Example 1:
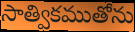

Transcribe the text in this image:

సాత్వికముతోను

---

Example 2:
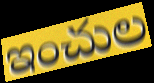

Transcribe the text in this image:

ఇంచుల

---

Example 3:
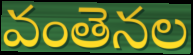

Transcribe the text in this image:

వంతెనల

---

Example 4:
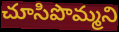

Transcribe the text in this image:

చూసిపొమ్మని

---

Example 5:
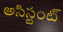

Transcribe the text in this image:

అసిస్టంట్